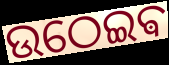
ଉଠେଇଵ